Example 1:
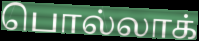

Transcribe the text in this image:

பொல்லாக்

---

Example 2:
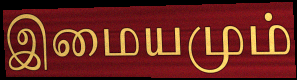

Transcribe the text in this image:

இமையமும்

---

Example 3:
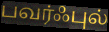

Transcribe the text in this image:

பவர்ஃபுல்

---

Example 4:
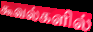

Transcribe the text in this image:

கூவல்களில்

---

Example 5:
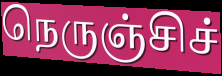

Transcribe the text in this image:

நெருஞ்சிச்